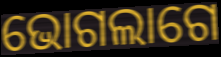
ଭୋଗଲାଗେ